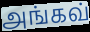
அங்கவ்